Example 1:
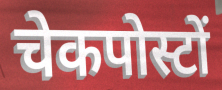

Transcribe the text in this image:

चेकपोस्टों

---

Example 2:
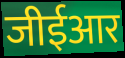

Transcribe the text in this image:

जीईआर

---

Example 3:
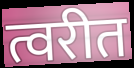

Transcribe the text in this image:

त्वरीत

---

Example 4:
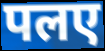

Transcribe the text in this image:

पलए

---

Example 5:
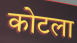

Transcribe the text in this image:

कोटला